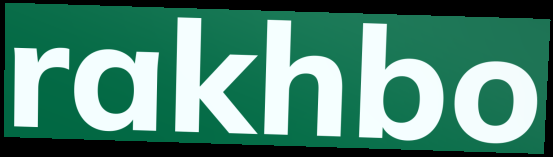
rakhbo